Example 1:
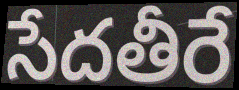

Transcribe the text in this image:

సేదతీరే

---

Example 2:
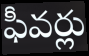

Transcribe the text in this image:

ఫీవర్లు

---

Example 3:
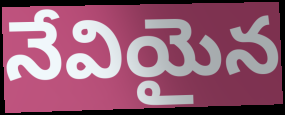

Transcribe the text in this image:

నేవియైన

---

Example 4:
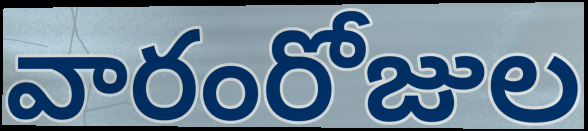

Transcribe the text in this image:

వారంరోజుల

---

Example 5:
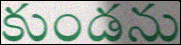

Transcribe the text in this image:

కుండను